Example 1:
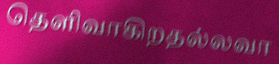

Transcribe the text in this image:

தெளிவாகிறதல்லவா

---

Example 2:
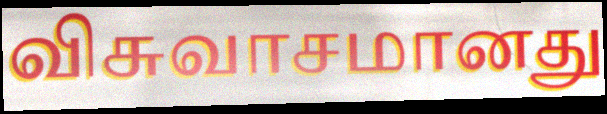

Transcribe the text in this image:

விசுவாசமானது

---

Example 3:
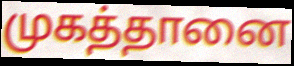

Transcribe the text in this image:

முகத்தானை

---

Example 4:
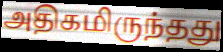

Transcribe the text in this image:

அதிகமிருந்தது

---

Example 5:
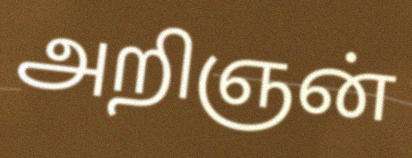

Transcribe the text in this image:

அறிஞன்